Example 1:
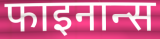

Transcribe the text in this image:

फाइनान्स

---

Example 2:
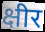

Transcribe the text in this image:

क्षीर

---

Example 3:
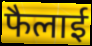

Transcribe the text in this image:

फैलाई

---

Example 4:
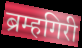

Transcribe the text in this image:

ब्रम्हगिरी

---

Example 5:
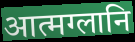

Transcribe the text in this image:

आत्मग्लानि